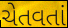
ચેતવતાં